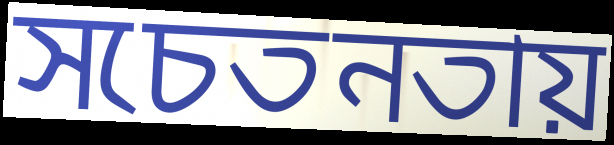
সচেতনতায়